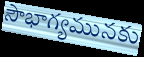
సౌభాగ్యమునకు